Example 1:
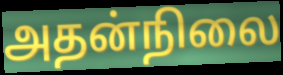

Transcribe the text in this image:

அதன்நிலை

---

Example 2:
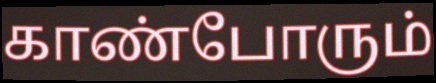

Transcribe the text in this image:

காண்போரும்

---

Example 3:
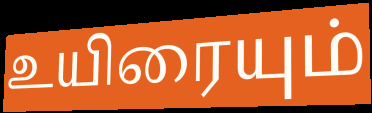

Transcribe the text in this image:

உயிரையும்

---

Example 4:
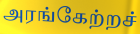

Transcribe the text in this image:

அரங்கேற்றச்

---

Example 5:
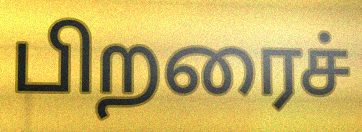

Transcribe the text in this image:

பிறரைச்